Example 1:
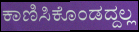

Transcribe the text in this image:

ಕಾಣಿಸಿಕೊಂಡದ್ದಲ್ಲ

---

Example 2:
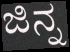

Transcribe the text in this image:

ಜಿನ್ನ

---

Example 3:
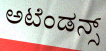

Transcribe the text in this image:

ಅಟೆಂಡನ್ಸ್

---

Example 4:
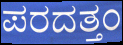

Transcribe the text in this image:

ಪರದತ್ತಂ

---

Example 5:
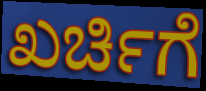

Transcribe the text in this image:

ಖರ್ಚಿಗೆ